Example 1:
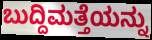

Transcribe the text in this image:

ಬುದ್ದಿಮತ್ತೆಯನ್ನು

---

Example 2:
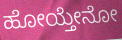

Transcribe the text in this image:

ಹೋಯ್ತೇನೋ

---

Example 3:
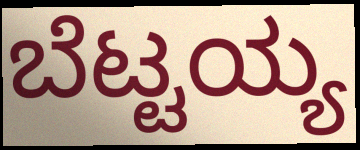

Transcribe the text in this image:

ಬೆಟ್ಟಯ್ಯ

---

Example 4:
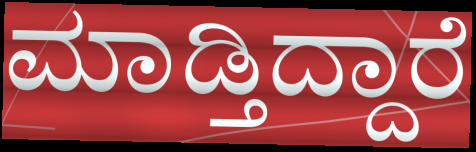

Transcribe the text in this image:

ಮಾಡ್ತಿದ್ದಾರೆ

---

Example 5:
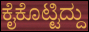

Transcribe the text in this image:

ಕೈಕೊಟ್ಟಿದ್ದು